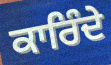
ਕਾਰਿੰਦੇ